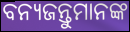
ବନ୍ୟଜନ୍ତୁମାନଙ୍କ